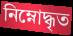
নিম্নোদ্ধৃত